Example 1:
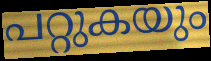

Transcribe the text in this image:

പറ്റുകയും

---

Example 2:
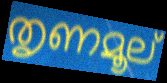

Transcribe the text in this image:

തൃണമൂല്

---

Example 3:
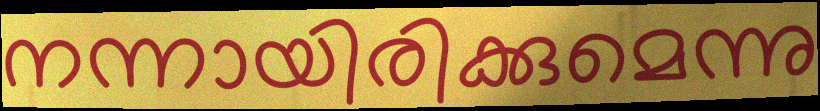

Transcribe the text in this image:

നന്നായിരിക്കുമെന്നു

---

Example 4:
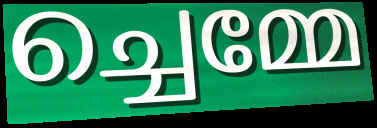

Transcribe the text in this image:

ച്ചെമ്മേ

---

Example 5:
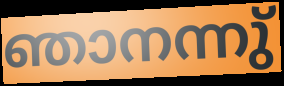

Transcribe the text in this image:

ഞാനന്നു്